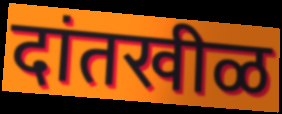
दांतखीळ